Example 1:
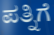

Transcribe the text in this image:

ಪತ್ನಿಗೆ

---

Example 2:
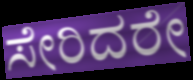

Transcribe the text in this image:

ಸೇರಿದರೇ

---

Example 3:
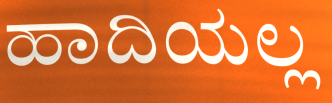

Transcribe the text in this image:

ಹಾದಿಯಲ್ಲ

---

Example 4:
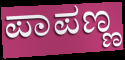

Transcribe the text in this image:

ಪಾಪಣ್ಣ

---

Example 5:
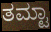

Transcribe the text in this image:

ತಮ್ಟಾ